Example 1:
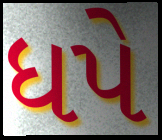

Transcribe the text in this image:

ધપે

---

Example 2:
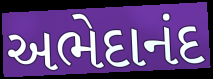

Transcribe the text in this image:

અભેદાનંદ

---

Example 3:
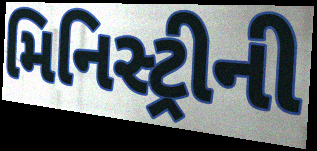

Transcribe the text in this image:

મિનિસ્ટ્રીની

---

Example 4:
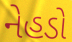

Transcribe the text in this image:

નેહડો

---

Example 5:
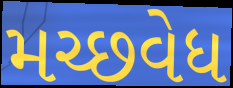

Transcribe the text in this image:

મચ્છવેધ